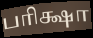
பரிக்ஷா